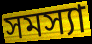
সমস্যা